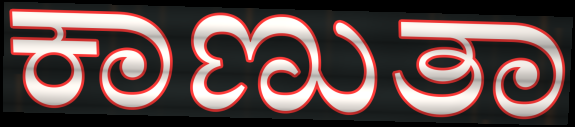
ಕಾಣುತಾ